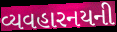
વ્યવહારનયની